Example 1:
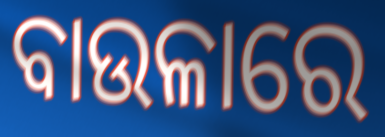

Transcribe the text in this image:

ବାଉଳାରେ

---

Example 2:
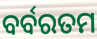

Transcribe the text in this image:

ବର୍ବରତମ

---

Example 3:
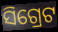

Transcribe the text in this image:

ସିଗ୍ରେଟ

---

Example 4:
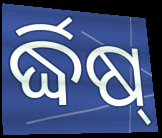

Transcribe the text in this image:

ର୍ଦ୍ଧିଷ୍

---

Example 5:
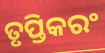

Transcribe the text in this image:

ତୃପ୍ତିକରଂ